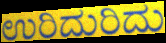
ಉರಿದುರಿದು